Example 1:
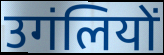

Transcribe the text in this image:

उगंलियों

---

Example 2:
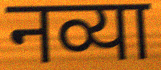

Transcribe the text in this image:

नव्या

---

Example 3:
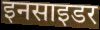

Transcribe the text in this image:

इनसाइडर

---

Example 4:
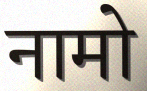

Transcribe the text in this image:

नामो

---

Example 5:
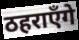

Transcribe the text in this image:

ठहराएँगे